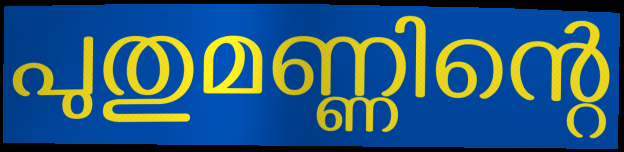
പുതുമണ്ണിന്റെ